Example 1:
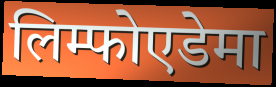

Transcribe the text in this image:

लिम्फोएडेमा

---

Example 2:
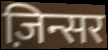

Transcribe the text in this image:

ज़िन्सर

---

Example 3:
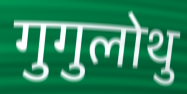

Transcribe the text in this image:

गुगुलोथु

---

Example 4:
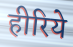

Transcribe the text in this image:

हीरिये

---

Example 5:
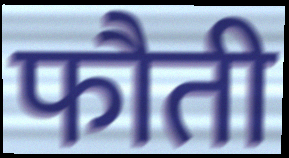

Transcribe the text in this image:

फौती